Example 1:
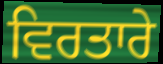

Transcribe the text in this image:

ਵਿਰਤਾਰੇ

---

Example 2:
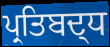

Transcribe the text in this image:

ਪ੍ਰਤਿਬਦ੍ਧ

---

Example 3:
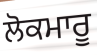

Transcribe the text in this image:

ਲੋਕਮਾਰੂ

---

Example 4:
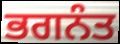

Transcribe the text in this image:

ਭਗਨੰਤ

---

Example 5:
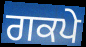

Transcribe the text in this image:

ਗਕਪੇ